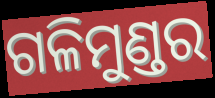
ଗଳିମୁଣ୍ଡର